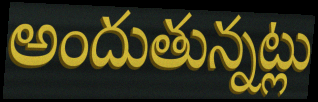
అందుతున్నట్లు